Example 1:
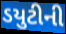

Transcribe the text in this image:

ડયુટીની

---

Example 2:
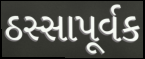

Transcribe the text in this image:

ઠસ્સાપૂર્વક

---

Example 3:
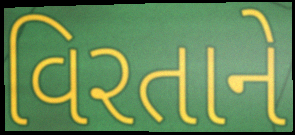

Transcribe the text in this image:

વિરતાને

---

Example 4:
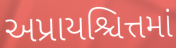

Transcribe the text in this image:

અપ્રાયશ્ચિત્તમાં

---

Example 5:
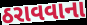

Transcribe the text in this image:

ઠરાવવાના